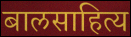
बालसाहित्य